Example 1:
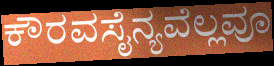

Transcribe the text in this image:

ಕೌರವಸೈನ್ಯವೆಲ್ಲವೂ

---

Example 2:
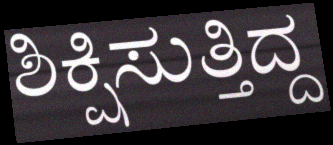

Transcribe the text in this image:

ಶಿಕ್ಷಿಸುತ್ತಿದ್ದ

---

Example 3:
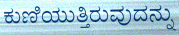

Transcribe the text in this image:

ಕುಣಿಯುತ್ತಿರುವುದನ್ನು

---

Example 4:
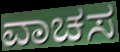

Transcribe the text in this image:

ವಾಚಸ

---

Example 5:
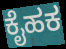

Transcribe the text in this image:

ಕೈಹಕ